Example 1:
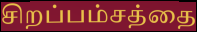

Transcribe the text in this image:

சிறப்பம்சத்தை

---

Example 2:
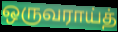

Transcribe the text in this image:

ஒருவராய்த்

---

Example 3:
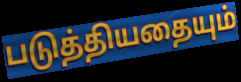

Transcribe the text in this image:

படுத்தியதையும்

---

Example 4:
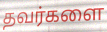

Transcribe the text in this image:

தவர்களை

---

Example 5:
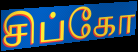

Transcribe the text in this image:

சிப்கோ